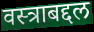
वस्त्राबद्दल